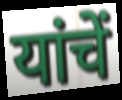
यांचें